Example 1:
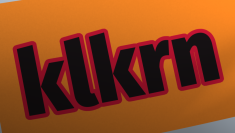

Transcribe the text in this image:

klkrn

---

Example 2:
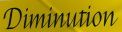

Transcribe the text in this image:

Diminution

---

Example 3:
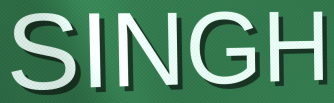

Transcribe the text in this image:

SINGH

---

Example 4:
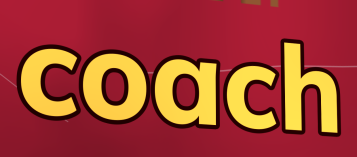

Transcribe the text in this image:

coach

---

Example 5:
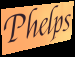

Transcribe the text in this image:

Phelps